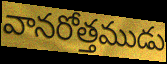
వానరోత్తముడు